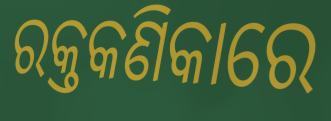
ରକ୍ତକଣିକାରେ